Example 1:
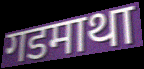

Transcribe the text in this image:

गडमाथा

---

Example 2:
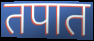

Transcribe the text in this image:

तपात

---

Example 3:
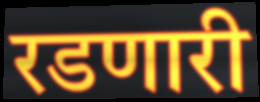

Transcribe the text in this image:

रडणारी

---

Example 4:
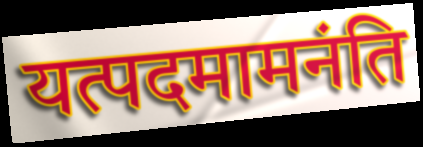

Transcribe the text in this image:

यत्पदमामनंति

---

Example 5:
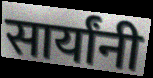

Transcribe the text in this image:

सार्यांनी